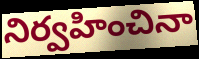
నిర్వహించినా